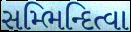
સમ્ભિન્દિત્વા